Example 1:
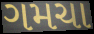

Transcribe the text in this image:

ગમચા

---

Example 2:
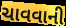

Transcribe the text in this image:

ચાવવાની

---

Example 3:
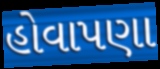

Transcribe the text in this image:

હોવાપણા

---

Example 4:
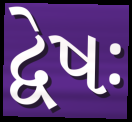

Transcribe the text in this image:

દ્વેષઃ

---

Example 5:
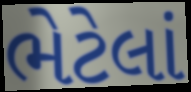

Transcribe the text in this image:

ભેટેલાં